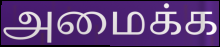
அமைக்க